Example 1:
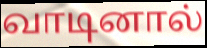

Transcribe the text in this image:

வாடினால்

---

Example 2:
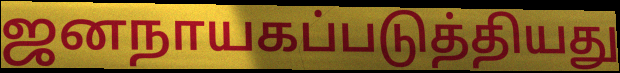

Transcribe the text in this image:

ஜனநாயகப்படுத்தியது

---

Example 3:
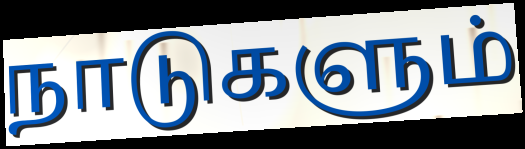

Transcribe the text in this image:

நாடுகளும்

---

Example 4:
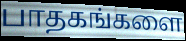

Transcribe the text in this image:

பாதகங்களை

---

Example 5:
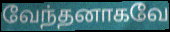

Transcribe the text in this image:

வேந்தனாகவே